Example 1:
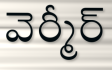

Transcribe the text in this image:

వెర్మీర్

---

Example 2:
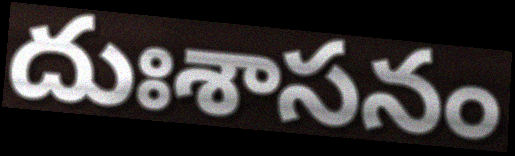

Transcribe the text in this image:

దుఃశాసనం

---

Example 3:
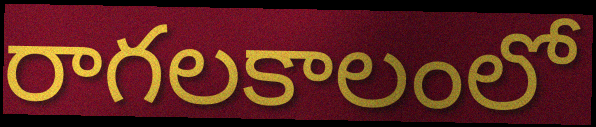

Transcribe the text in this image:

రాగలకాలంలో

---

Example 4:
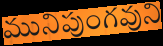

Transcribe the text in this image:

మునిపుంగవుని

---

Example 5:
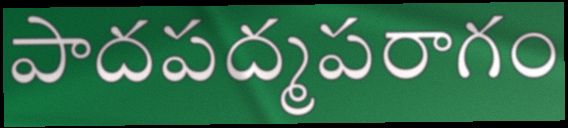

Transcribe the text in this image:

పాదపద్మపరాగం